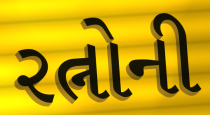
રત્નોની